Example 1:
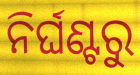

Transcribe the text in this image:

ନିର୍ଘଣ୍ଟରୁ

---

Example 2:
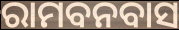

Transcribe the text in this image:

ରାମବନବାସ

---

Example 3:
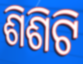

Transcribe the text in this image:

ଶିଶିଟି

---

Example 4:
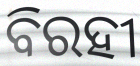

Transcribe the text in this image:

ବିରହୀ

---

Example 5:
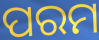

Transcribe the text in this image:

ପରମ